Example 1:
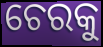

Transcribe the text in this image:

ଚେରକୁ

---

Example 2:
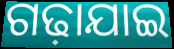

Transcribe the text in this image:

ଗଢ଼ାଯାଇ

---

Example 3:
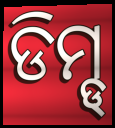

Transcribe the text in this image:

ଡିମ୍ଡ୍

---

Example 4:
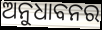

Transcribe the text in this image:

ଅନୁଧାବନର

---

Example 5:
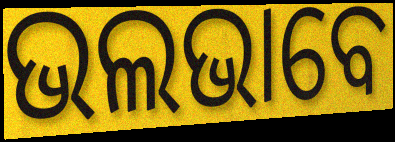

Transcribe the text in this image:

ଭଲଭାବେ